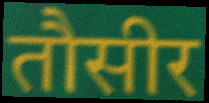
तौसीर